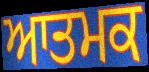
ਆਤਮਕ